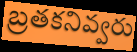
బ్రతకనివ్వరు